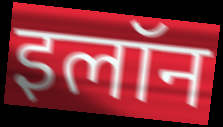
इलॉन